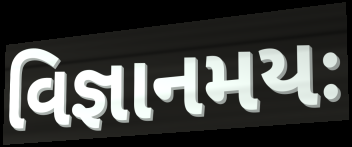
વિજ્ઞાનમયઃ